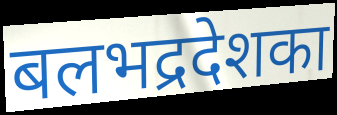
बलभद्रदेशका